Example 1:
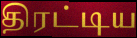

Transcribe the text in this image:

திரட்டிய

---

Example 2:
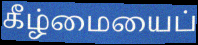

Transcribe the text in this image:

கீழ்மையைப்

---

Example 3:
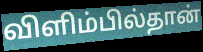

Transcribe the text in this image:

விளிம்பில்தான்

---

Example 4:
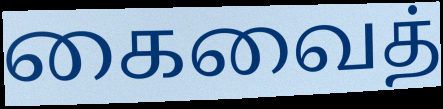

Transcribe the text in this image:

கைவைத்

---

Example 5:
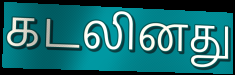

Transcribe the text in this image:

கடலினது